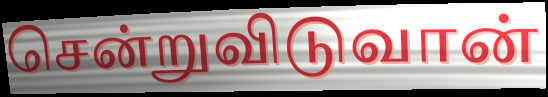
சென்றுவிடுவான்